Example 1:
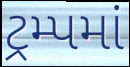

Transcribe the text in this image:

ટ્રમ્પમાં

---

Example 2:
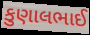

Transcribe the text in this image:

કુણાલભાઈ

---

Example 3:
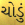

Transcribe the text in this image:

ચોડું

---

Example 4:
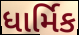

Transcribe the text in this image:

ધાર્મિક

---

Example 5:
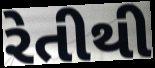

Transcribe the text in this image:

રેતીથી